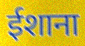
ईशाना